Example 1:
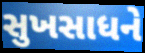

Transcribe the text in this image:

સુખસાધને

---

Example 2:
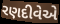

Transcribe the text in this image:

રણદીવેએ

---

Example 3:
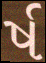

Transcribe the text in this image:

ર્ષ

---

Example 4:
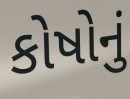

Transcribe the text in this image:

કોષોનું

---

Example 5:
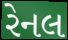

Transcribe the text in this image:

રેનલ